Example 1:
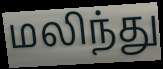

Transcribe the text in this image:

மலிந்து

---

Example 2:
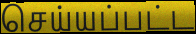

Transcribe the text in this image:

செய்யப்பட்ட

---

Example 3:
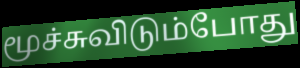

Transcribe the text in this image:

மூச்சுவிடும்போது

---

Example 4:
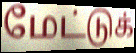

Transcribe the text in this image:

மேட்டுக்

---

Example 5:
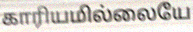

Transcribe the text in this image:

காரியமில்லையே